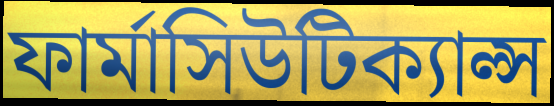
ফার্মাসিউটিক্যাল্স